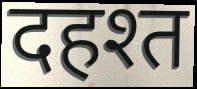
दहश्त